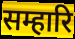
सम्हारि